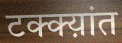
टक्क्य़ांत